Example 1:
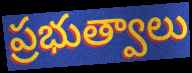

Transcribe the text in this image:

ప్రభుత్వాలు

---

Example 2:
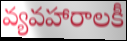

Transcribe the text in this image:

వ్యవహారాలకీ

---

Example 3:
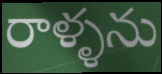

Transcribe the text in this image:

రాళ్ళను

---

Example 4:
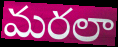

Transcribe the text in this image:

మరలా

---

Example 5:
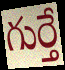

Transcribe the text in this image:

గుర్తే